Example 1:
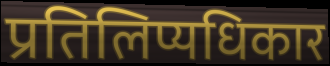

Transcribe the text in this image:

प्रतिलिप्यधिकार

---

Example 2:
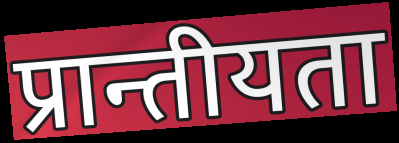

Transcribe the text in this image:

प्रान्तीयता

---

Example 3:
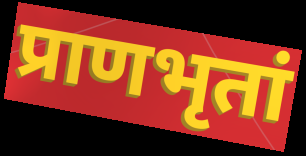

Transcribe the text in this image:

प्राणभृतां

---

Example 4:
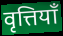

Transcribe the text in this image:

वृत्तियाँ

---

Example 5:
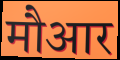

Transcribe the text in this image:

मौआर